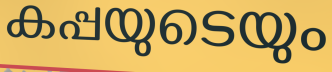
കപ്പയുടെയും